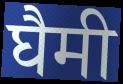
घैमी